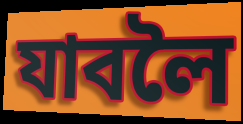
যাবলৈ